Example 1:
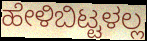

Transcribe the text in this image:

ಹೇಳಿಬಿಟ್ಟಳಲ್ಲ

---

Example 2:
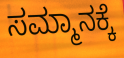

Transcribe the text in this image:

ಸಮ್ಮಾನಕ್ಕೆ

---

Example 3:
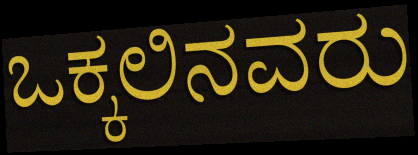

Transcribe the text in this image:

ಒಕ್ಕಲಿನವರು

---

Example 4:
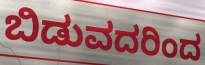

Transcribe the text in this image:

ಬಿಡುವದರಿಂದ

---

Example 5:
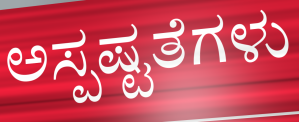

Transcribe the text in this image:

ಅಸ್ಪಷ್ಟತೆಗಳು